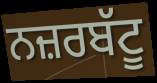
ਨਜ਼ਰਬੱਟੂ